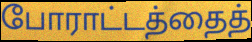
போராட்டத்தைத்